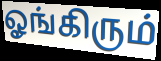
ஓங்கிரும்